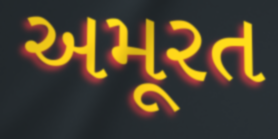
અમૂરત